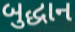
બુદ્ધાન